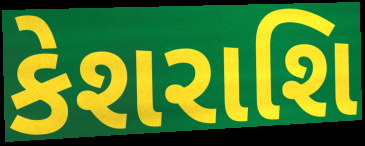
કેશરાશિ